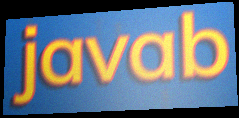
javab